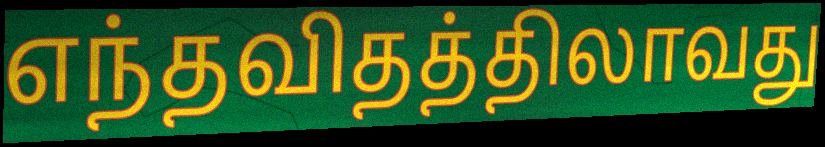
எந்தவிதத்திலாவது